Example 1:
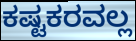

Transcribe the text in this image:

ಕಷ್ಟಕರವಲ್ಲ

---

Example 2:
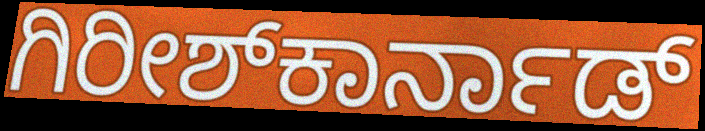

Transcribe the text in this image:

ಗಿರೀಶ್‌ಕಾರ್ನಾಡ್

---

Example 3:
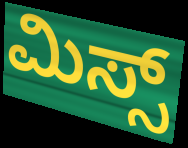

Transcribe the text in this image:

ಮಿಸ್ಸ್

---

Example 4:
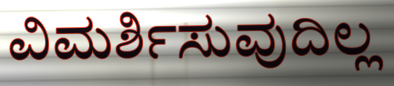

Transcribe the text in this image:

ವಿಮರ್ಶಿಸುವುದಿಲ್ಲ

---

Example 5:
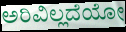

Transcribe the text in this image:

ಅರಿವಿಲ್ಲದೆಯೋ